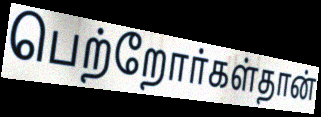
பெற்றோர்கள்தான்